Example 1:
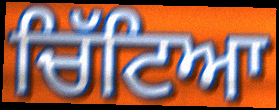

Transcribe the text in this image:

ਚਿੱਟਿਆ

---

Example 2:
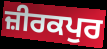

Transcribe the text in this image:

ਜ਼ੀਰਕਪੁਰ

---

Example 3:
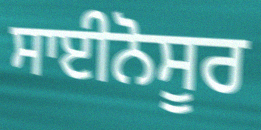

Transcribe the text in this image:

ਸਾਈਨੋਸੂਰ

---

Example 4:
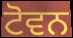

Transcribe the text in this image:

ਟੋਵਨ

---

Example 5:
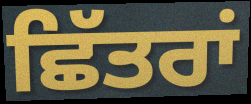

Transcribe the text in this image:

ਛਿੱਤਰਾਂ